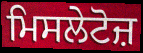
ਮਿਸਲੇਟੋਜ਼